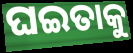
ଘଇତାକୁ